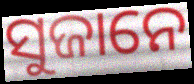
ସୁଜାନେ